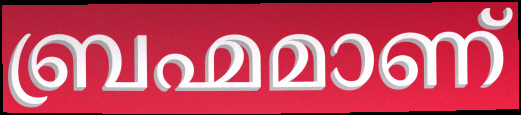
ബ്രഹ്മമാണ്